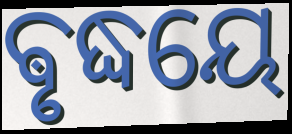
ଵୃଦ୍ଧୟେ